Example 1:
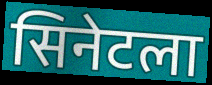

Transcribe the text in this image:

सिनेटला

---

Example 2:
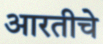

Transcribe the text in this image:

आरतीचे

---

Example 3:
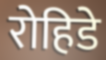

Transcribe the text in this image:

रोहिडे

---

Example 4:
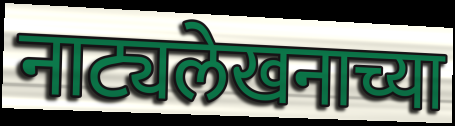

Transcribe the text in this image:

नाट्यलेखनाच्या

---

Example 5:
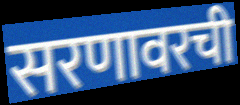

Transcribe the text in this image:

सरणावरची